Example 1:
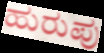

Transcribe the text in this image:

ಹುರುಪು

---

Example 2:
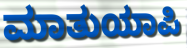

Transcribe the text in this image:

ಮಾತುಯಾಪಿ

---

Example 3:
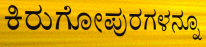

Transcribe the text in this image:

ಕಿರುಗೋಪುರಗಳನ್ನೂ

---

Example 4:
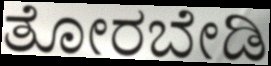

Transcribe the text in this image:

ತೋರಬೇಡಿ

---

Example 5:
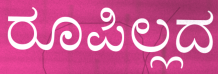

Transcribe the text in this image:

ರೂಪಿಲ್ಲದ